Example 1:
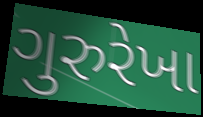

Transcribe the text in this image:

ગુરુરેખા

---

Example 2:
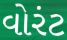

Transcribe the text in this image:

વોરંટ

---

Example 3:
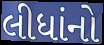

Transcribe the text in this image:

લીધાંનો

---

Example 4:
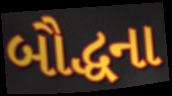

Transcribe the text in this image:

બૌદ્ધના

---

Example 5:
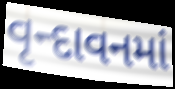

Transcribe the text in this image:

વૃન્દાવનમાં